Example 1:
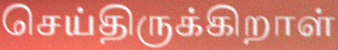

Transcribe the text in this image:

செய்திருக்கிறாள்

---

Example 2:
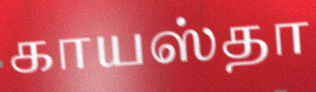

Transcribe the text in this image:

காயஸ்தா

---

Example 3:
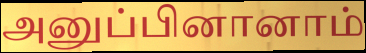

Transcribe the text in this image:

அனுப்பினானாம்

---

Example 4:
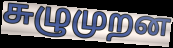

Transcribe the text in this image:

சுழுமுறன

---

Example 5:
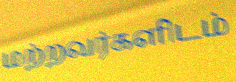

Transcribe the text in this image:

மற்றவர்களிடம்